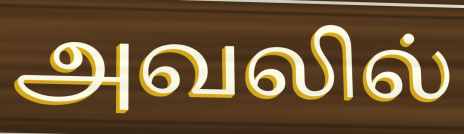
அவலில்